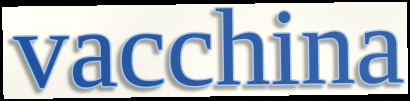
vacchina